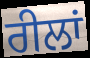
ਰੀਲਾਂ